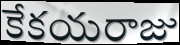
కేకయరాజు